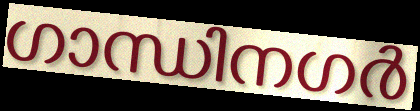
ഗാന്ധിനഗർ